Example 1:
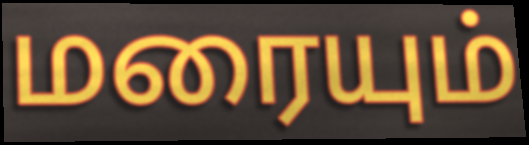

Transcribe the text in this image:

மரையும்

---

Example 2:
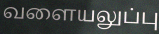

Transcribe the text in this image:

வளையலுப்பு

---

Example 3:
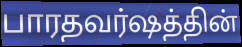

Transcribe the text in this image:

பாரதவர்ஷத்தின்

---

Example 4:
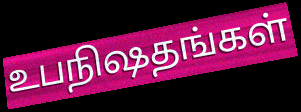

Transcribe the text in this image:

உபநிஷதங்கள்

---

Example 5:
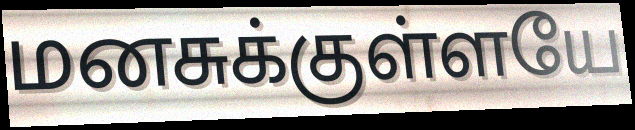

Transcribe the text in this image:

மனசுக்குள்ளயே